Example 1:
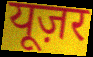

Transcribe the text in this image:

यूज़र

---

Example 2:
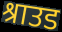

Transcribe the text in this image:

श्राउड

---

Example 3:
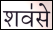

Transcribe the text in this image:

शव॑से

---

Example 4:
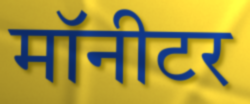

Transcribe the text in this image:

मॉनीटर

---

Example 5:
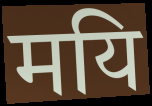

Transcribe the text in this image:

मयि